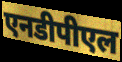
एनडीपीएल